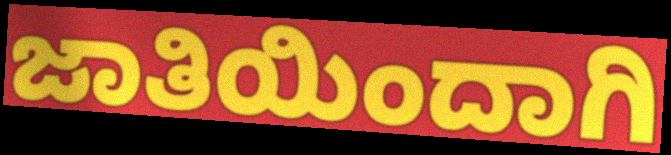
ಜಾತಿಯಿಂದಾಗಿ